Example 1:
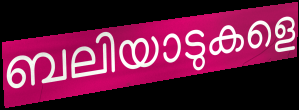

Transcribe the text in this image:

ബലിയാടുകളെ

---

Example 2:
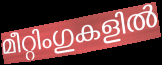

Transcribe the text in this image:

മീറ്റിംഗുകളിൽ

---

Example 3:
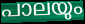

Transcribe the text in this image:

പാലയും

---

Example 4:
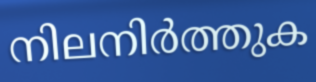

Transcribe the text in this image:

നിലനിർത്തുക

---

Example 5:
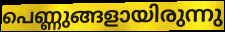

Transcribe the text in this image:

പെണ്ണുങ്ങളായിരുന്നു